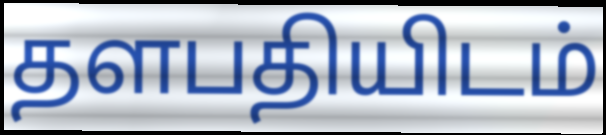
தளபதியிடம்